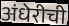
अंधेरीची